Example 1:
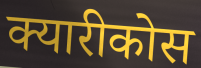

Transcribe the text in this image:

क्यारीकोस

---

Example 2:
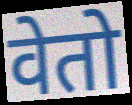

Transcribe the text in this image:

वेतो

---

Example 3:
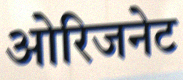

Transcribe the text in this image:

ओरिजनेट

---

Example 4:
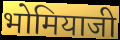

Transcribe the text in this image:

भोमियाजी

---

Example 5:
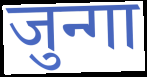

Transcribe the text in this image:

जुन्गा